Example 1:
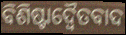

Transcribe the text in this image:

ବିଶିଷ୍ଟାଦ୍ୱୈତବାଦ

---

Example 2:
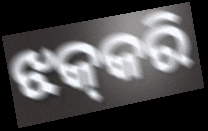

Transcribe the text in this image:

ଝକ୍‌କରି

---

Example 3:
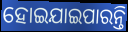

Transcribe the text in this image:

ହୋଇଯାଇପାରନ୍ତି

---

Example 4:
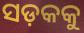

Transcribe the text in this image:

ସଡ଼କକୁ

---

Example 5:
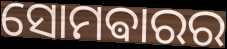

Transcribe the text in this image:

ସୋମଵାରର